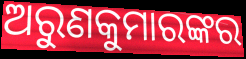
ଅରୁଣକୁମାରଙ୍କର